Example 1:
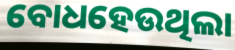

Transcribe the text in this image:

ବୋଧହେଉଥିଲା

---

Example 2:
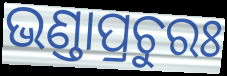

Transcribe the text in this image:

ଭଣ୍ଡାପ୍ରଚୁରଃ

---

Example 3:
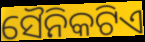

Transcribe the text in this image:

ସୈନିକଟିଏ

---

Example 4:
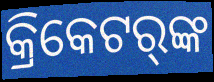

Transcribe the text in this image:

କ୍ରିକେଟର୍‌ଙ୍କ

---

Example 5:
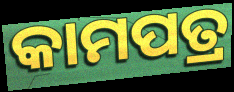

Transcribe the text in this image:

କାମପତ୍ର